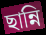
ছান্নি